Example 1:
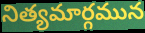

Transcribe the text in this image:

నిత్యమార్గమున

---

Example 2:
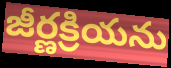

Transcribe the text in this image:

జీర్ణక్రియను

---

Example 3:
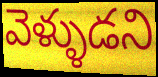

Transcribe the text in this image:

వెళ్ళుడని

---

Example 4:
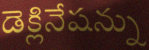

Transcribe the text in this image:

డెక్లినేషన్ను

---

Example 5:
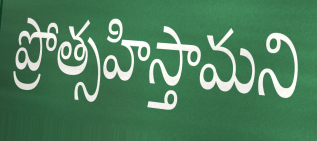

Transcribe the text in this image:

ప్రోత్సహిస్తామని